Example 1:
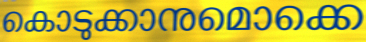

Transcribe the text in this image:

കൊടുക്കാനുമൊക്കെ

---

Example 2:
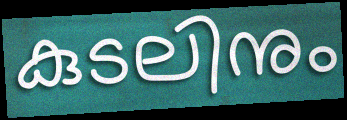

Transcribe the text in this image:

കുടലിനും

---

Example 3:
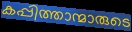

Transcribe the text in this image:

കപ്പിത്താന്മാരുടെ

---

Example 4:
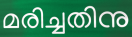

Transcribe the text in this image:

മരിച്ചതിനു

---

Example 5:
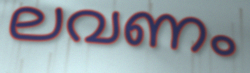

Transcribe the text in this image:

ലവണം